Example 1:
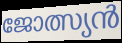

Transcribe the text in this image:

ജോത്സ്യൻ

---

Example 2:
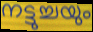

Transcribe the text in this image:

നട്ടുച്ചയും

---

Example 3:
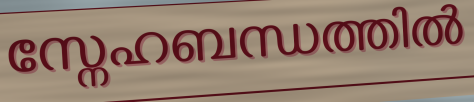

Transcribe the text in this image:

സ്നേഹബന്ധത്തിൽ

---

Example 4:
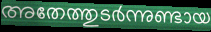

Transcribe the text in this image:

അതേത്തുടർന്നുണ്ടായ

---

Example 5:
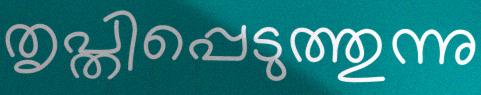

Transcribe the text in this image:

തൃപ്തിപ്പെടുത്തുന്നു